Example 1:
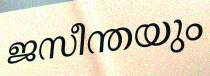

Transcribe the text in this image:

ജസീന്തയും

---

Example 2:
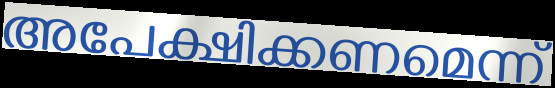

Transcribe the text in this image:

അപേക്ഷിക്കണമെന്ന്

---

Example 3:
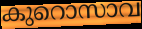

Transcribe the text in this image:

കുറൊസാവ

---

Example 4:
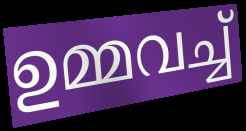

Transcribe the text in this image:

ഉമ്മവച്ച്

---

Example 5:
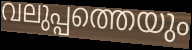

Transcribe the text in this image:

വലുപ്പത്തെയും